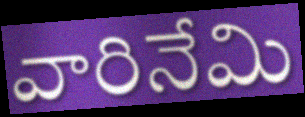
వారినేమి